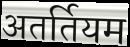
अतर्तियम